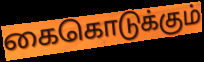
கைகொடுக்கும்